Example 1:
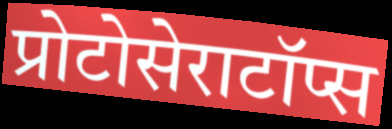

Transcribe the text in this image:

प्रोटोसेराटॉप्स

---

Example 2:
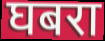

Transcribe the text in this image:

घबरा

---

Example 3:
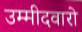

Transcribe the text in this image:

उम्मीदवारो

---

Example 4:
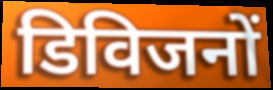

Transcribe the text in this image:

डिविजनों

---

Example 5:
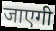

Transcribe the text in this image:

जाएगी